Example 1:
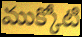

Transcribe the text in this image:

ముక్కోటి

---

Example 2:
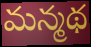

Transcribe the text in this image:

మన్మథ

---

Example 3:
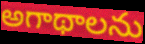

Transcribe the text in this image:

అగాథాలను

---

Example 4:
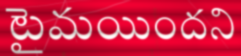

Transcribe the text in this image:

టైమయిందని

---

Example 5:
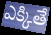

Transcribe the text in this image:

ఎక్కితే